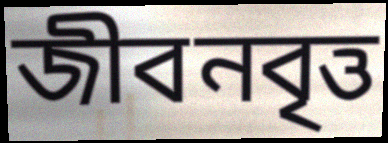
জীবনবৃত্ত